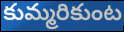
కుమ్మరికుంట